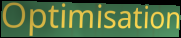
Optimisation